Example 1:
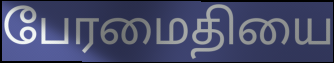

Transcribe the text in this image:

பேரமைதியை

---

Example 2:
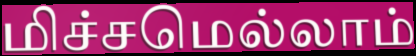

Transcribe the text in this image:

மிச்சமெல்லாம்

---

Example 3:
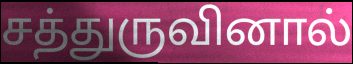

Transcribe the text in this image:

சத்துருவினால்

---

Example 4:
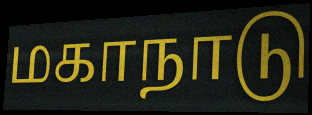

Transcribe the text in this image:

மகாநாடு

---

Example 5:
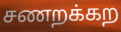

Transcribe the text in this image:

சணறக்கற